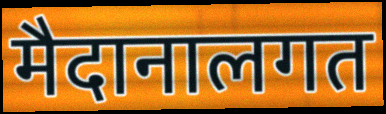
मैदानालगत